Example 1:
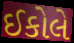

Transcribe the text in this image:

ઈકોલે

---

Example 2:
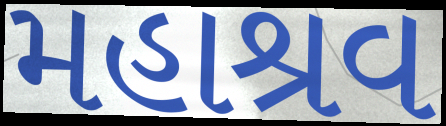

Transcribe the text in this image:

મહાશ્રવ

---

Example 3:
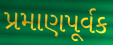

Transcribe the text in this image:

પ્રમાણપૂર્વક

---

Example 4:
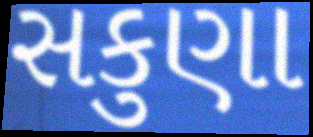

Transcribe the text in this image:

સકુણા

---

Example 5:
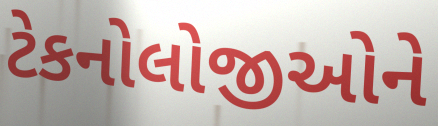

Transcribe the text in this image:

ટેકનોલોજીઓને